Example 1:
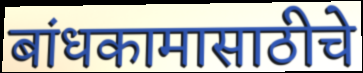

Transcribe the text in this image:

बांधकामासाठीचे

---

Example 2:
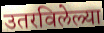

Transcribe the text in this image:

उतरविलेल्या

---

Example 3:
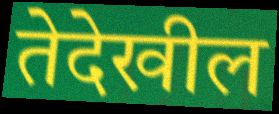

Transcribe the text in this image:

तेदेखील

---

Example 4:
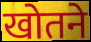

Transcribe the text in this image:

खोतने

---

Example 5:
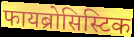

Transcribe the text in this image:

फायब्रोसिस्टिक